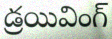
డ్రయివింగ్